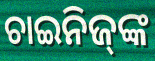
ଚାଇନିଜ୍‌ଙ୍କ